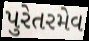
પુરેતરમેવ